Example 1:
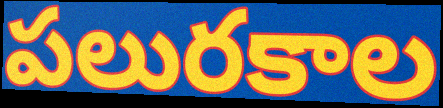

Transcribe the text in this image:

పలురకాల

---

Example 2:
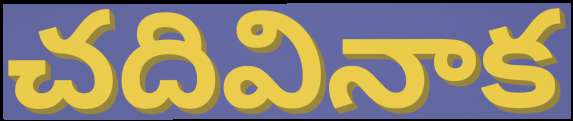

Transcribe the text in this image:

చదివినాక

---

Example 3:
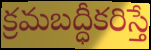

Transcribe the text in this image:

క్రమబద్ధీకరిస్తే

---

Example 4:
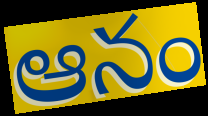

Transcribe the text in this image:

ఆనం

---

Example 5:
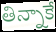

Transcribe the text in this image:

తిన్నాకే